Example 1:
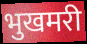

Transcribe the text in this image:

भुखमरी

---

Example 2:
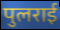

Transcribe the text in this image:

पुलराई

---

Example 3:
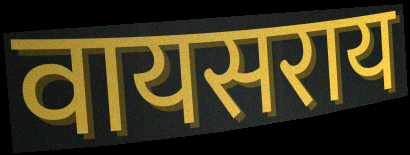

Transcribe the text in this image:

वायसराय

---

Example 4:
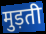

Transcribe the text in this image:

मुड़ती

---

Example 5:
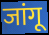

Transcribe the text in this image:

जांगू